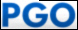
PGO